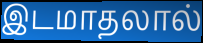
இடமாதலால்